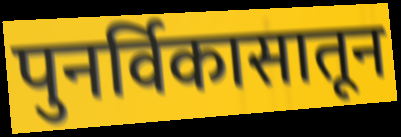
पुनर्विकासातून